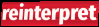
reinterpret